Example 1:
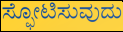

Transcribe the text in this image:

ಸ್ಫೋಟಿಸುವುದು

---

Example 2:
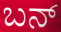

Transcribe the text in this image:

ಬನ್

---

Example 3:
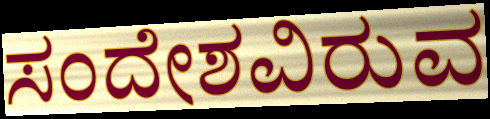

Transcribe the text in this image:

ಸಂದೇಶವಿರುವ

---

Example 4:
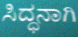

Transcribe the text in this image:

ಸಿದ್ಧನಾಗಿ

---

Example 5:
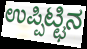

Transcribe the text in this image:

ಉಪ್ಪಿಟ್ಟಿನ